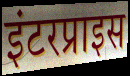
इंटरप्राइस